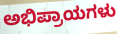
ಅಭಿಪ್ರಾಯಗಳು